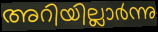
അറിയില്ലാർന്നു